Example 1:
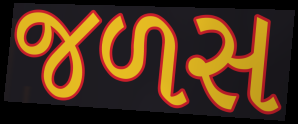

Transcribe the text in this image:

જળસ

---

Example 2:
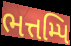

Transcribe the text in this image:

ભત્તમ્પિ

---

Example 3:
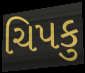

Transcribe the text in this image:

ચિપકુ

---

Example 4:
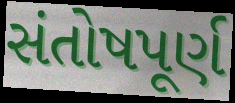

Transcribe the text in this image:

સંતોષપૂર્ણ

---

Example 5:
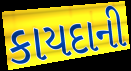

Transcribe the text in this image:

કાયદાની